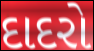
દાદરો